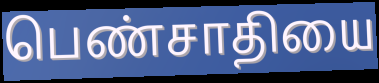
பெண்சாதியை